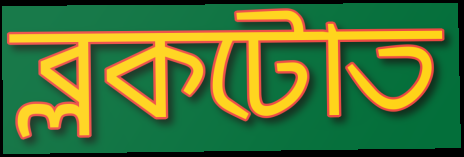
ব্লকটোত